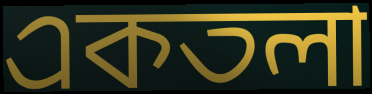
একতলা